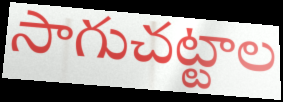
సాగుచట్టాల